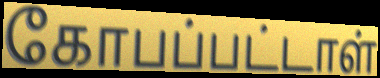
கோபப்பட்டாள்